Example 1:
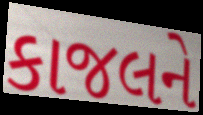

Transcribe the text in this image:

કાજલને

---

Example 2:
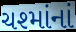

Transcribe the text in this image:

ચશ્માંનાં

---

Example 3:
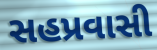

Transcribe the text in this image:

સહપ્રવાસી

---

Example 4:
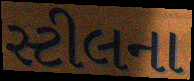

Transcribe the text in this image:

સ્ટીલના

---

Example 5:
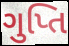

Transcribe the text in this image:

ગુપ્તિ